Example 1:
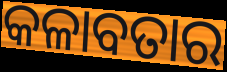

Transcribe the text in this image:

କଳାବତାର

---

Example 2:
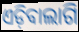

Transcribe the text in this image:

ଏଡ଼ିବାଲାଗି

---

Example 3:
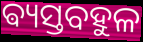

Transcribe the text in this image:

ଵ୍ୟସ୍ତବହୁଳ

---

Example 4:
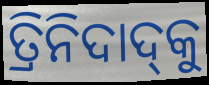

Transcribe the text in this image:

ତ୍ରିନିଦାଦ୍‍କୁ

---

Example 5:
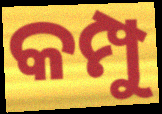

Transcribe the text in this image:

କମ୍ପୁ